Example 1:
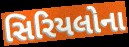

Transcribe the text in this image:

સિરિયલોના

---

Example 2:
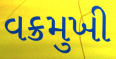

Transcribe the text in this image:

વક્રમુખી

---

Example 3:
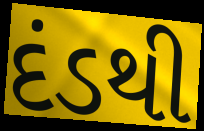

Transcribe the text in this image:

દંડથી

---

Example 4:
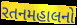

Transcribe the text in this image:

રતનમહાલનો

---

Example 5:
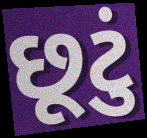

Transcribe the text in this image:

છૂટું